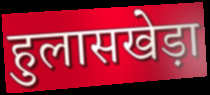
हुलासखेड़ा